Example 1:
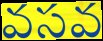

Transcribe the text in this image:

వసవ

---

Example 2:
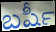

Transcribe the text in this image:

బషీర్‍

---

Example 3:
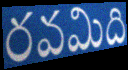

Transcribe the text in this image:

రవమిది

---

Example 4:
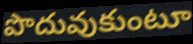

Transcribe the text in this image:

పొదువుకుంటూ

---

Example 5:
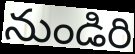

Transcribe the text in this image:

నుండిరి